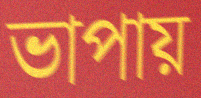
ভাপায়